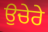
ਉਚੇਰੇ